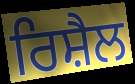
ਰਿਸ਼ੈਲ